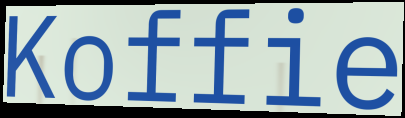
Koffie